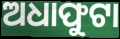
ଅଧାଫୁଟା